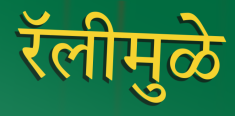
रॅलीमुळे